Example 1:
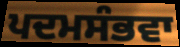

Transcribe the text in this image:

ਪਦਮਸੰਭਵਾ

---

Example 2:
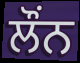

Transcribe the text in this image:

ਲੌਂਨ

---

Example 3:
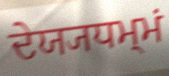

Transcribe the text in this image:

ਦੇਯ੍ਯਧਮ੍ਮਂ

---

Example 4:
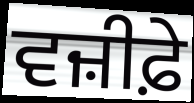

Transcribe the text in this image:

ਵਜ਼ੀਫ਼ੇ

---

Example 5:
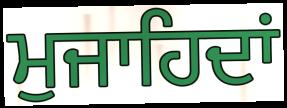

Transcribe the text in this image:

ਮੁਜਾਹਿਦਾਂ